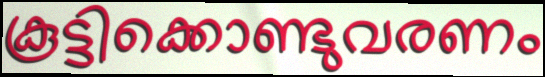
കൂട്ടിക്കൊണ്ടുവരണം